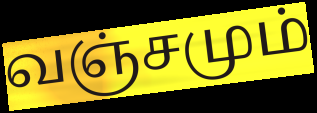
வஞ்சமும்